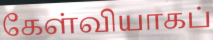
கேள்வியாகப்